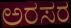
ಅರಸರ